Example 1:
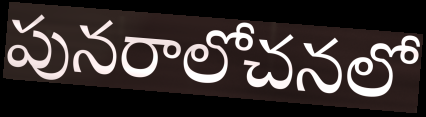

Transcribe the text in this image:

పునరాలోచనలో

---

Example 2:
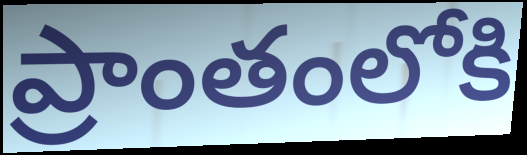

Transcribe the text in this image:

ప్రాంతంలోకి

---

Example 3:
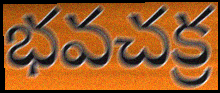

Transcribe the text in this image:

భవచక్ర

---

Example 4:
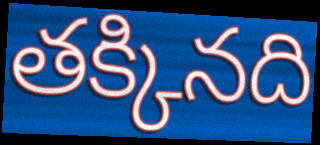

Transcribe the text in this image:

తక్కినది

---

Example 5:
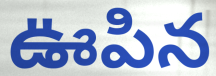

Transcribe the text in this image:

ఊపిన